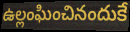
ఉల్లంఘించినందుకే